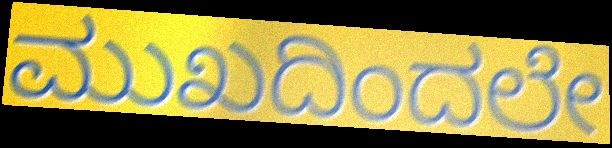
ಮುಖದಿಂದಲೇ